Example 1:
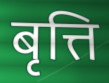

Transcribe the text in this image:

बृत्ति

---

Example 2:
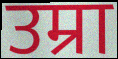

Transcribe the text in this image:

उम्रा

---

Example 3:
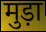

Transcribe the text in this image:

मुड़ा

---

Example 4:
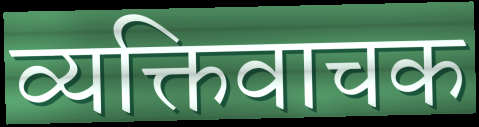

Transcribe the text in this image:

व्यक्तिवाचक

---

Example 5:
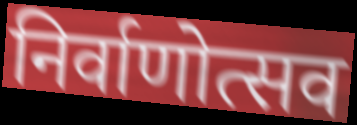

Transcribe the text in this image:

निर्वाणोत्सव